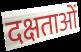
दक्षताओं